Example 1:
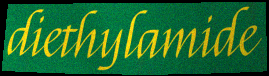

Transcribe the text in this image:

diethylamide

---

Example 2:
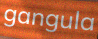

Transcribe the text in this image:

gangula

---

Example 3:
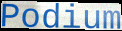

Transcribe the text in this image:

Podium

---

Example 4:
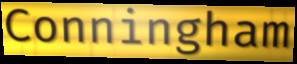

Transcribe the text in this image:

Conningham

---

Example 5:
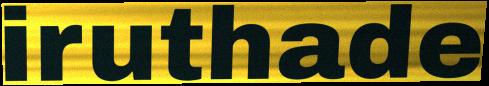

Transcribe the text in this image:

iruthade